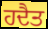
ਹਦੈਤ